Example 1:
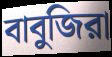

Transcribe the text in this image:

বাবুজিরা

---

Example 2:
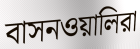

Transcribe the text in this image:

বাসনওয়ালিরা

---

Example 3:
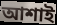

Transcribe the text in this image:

আশাই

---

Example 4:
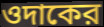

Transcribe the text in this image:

ওদাকের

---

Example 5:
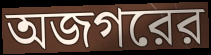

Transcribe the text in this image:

অজগরের